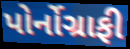
પોર્નોગ્રાફી